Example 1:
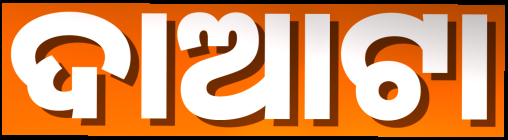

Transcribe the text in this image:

ଦାଆଟା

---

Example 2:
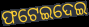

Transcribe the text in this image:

ଫଟେଇଦେଇ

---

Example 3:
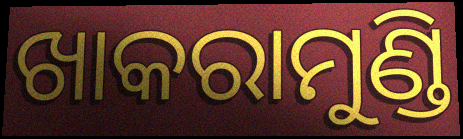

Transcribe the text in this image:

ଖାକରାମୁଣ୍ଡି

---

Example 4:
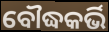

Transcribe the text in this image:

ବୌଦ୍ଧକର୍ଭି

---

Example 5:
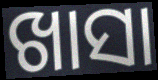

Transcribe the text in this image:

ଖାସା